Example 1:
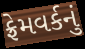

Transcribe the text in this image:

ફ્રેમવર્કનું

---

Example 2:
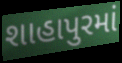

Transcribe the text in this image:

શાહાપુરમાં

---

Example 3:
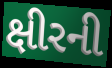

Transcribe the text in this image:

ક્ષીરની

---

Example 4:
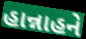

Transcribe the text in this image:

હાન્નાહને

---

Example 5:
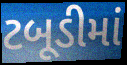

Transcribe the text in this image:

ટબૂડીમાં